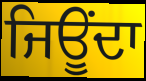
ਜਿਊੂਂਦਾ